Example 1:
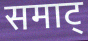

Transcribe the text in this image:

समाट्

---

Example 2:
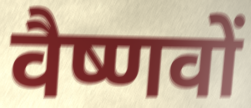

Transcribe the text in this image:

वैष्णवों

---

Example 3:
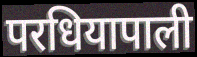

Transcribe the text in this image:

परधियापाली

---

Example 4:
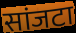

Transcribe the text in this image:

सांजटा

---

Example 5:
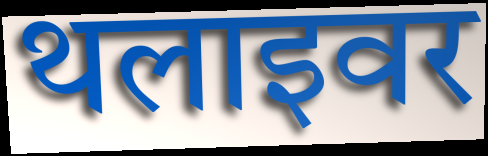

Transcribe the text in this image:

थलाइवर